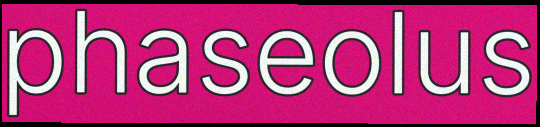
phaseolus